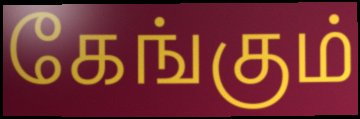
கேங்கும்